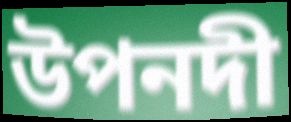
উপনদী